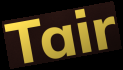
Tair